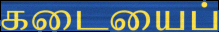
கடையைப்